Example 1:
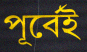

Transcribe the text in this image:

পূর্বেই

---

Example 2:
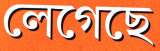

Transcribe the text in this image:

লেগেছে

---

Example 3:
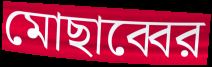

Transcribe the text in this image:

মোছাব্বের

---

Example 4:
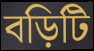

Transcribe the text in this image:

বড়িটি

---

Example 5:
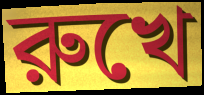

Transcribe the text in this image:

রুখে